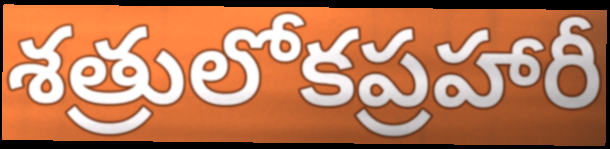
శత్రులోకప్రహారీ